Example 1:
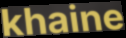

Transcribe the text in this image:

khaine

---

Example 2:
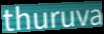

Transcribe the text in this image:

thuruva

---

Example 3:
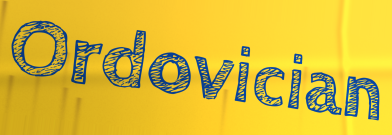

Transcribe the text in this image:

Ordovician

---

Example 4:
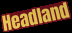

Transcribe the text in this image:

Headland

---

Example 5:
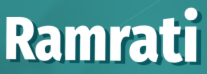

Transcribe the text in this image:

Ramrati